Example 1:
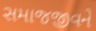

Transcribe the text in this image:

સમાજજીવને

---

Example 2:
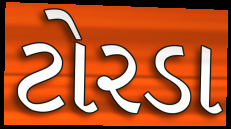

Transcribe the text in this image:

ટોરડા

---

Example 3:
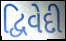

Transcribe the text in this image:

દ્વિવેદી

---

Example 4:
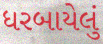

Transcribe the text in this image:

ધરબાયેલું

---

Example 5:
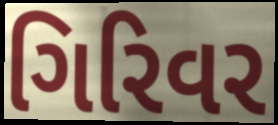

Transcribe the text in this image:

ગિરિવર